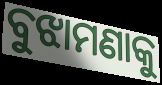
ବୁଝାମଣାକୁ